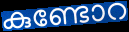
കുണ്ടോറ